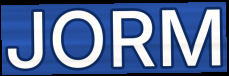
JORM